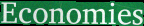
Economies